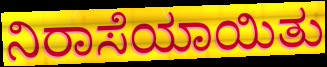
ನಿರಾಸೆಯಾಯಿತು